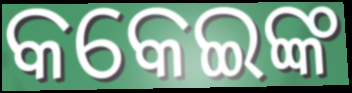
କକେଇଙ୍କ